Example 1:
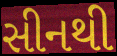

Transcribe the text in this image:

સીનથી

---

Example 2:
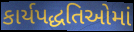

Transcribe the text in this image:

કાર્યપદ્ધતિઓમાં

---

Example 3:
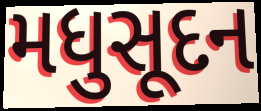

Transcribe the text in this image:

મધુસૂદન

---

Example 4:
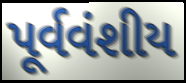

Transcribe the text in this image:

પૂર્વવંશીય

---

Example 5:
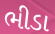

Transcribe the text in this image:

ભીડા